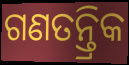
ଗଣତନ୍ତ୍ରିକ